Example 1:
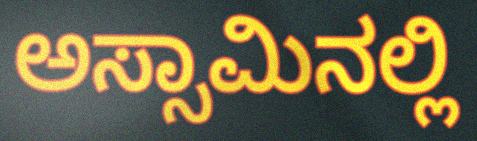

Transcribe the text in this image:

ಅಸ್ಸಾಮಿನಲ್ಲಿ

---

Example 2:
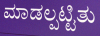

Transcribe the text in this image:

ಮಾಡಲ್ಪಟ್ಟಿತು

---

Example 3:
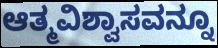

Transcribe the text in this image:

ಆತ್ಮವಿಶ್ವಾಸವನ್ನೂ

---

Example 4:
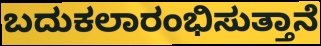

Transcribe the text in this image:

ಬದುಕಲಾರಂಭಿಸುತ್ತಾನೆ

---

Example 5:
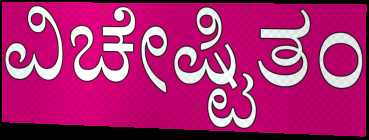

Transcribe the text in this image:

ವಿಚೇಷ್ಟಿತಂ